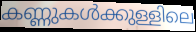
കണ്ണുകൾക്കുള്ളിലെ